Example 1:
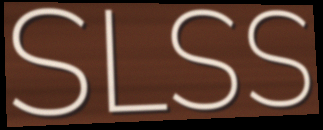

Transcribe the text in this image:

SLSS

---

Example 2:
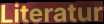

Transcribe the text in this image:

Literatur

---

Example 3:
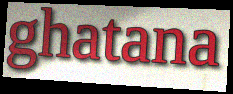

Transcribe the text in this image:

ghatana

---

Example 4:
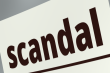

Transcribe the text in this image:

scandal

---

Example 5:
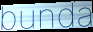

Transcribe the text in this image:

bunda